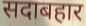
सदाबहार